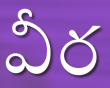
వీర